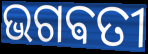
ଭଗଵତୀ